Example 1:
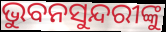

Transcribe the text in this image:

ଭୁବନସୁନ୍ଦରୀଙ୍କୁ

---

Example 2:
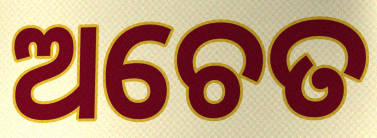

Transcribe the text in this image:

ଅଚେତ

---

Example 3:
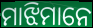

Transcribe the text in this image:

ମାଝିମାନେ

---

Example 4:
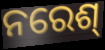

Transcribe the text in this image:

ନରେଶ୍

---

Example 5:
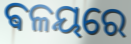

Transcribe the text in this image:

ଵଳୟରେ